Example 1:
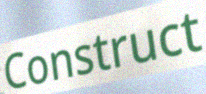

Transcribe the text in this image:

Construct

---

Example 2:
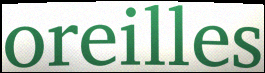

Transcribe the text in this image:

oreilles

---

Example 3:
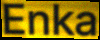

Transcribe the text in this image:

Enka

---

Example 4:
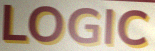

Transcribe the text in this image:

LOGIC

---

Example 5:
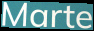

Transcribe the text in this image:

Marte